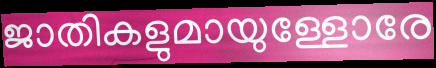
ജാതികളുമായുള്ളോരേ